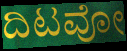
ದಿಟವೋ